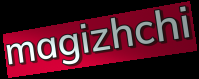
magizhchi